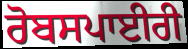
ਰੋਬਸਪਾਈਰੀ